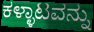
ಕಳ್ಳಾಟವನ್ನು